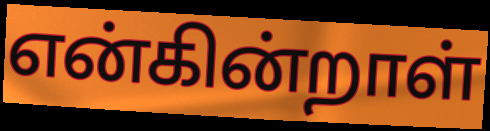
என்கின்றாள்